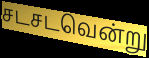
சடசடவென்று